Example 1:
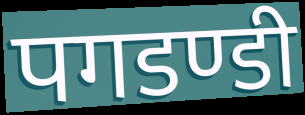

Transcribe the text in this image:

पगडण्डी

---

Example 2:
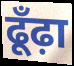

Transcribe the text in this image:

ढूँढ़ा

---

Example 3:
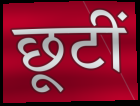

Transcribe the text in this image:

छूटीं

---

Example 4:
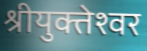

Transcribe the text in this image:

श्रीयुक्तेश्वर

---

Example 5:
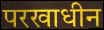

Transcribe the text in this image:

परखाधीन